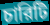
চারিটি